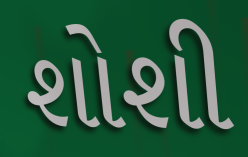
શોશી